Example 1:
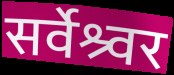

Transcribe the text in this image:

सर्वेश्र्वर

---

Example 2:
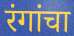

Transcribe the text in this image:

रंगांचा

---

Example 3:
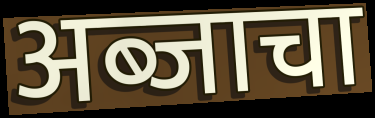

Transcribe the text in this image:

अब्जाचा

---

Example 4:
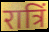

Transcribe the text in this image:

रात्रिं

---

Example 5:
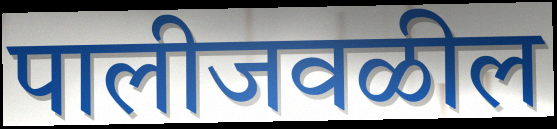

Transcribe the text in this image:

पालीजवळील